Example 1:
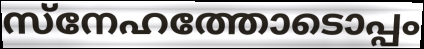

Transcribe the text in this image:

സ്നേഹത്തോടൊപ്പം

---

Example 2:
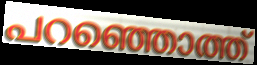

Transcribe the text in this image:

പറഞ്ഞൊത്ത്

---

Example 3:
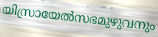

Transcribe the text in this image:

യിസ്രായേൽസഭമുഴുവനും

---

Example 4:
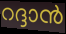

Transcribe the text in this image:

റദ്ദാൻ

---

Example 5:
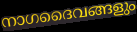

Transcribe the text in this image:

നാഗദൈവങ്ങളും